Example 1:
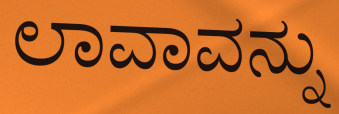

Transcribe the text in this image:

ಲಾವಾವನ್ನು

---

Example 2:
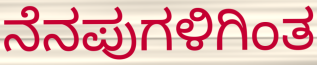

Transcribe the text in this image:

ನೆನಪುಗಳಿಗಿಂತ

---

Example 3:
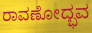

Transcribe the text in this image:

ರಾವಣೋದ್ಭವ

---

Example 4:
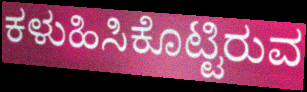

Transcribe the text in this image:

ಕಳುಹಿಸಿಕೊಟ್ಟಿರುವ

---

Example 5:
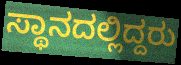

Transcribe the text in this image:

ಸ್ಥಾನದಲ್ಲಿದ್ದರು